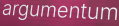
argumentum